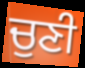
ਚੁਣੀ